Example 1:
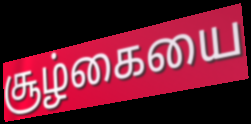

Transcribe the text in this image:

சூழ்கையை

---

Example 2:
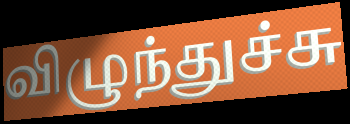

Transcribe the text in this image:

விழுந்துச்சு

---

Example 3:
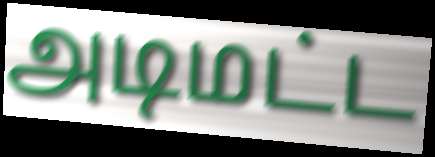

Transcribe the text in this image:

அடிமட்ட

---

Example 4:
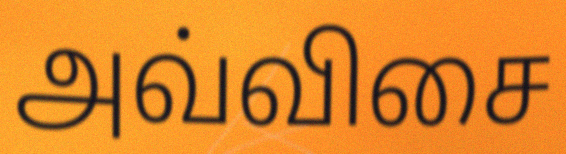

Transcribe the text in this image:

அவ்விசை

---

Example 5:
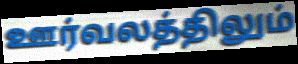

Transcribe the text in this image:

ஊர்வலத்திலும்